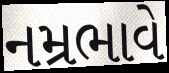
નમ્રભાવે